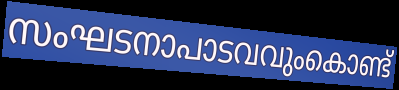
സംഘടനാപാടവവുംകൊണ്ട്